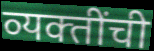
व्‍यक्‍तींची